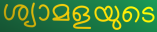
ശ്യാമളയുടെ